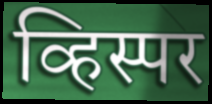
व्हिस्पर